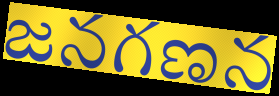
జనగణన